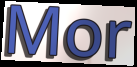
Mor